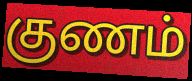
குணம்